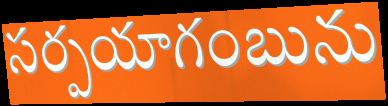
సర్పయాగంబును